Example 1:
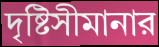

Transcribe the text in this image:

দৃষ্টিসীমানার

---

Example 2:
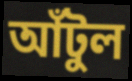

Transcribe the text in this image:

আঁটুল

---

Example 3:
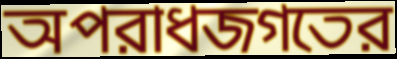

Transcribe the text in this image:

অপরাধজগতের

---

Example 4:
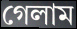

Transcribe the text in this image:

গেলাম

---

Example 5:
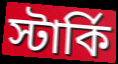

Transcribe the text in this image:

স্টার্কি